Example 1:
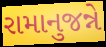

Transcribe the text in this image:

રામાનુજન્ને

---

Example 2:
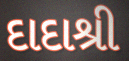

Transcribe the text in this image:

દાદાશ્રી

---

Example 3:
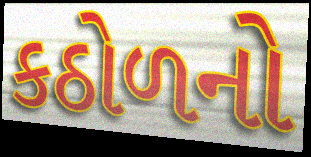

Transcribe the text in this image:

કઠોળનો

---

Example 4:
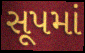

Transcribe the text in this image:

સૂપમાં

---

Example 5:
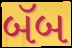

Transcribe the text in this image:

બૅબ